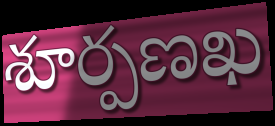
శూర్పణఖ